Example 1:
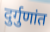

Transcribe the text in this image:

दुर्गुणांत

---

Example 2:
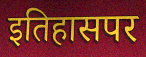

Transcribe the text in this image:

इतिहासपर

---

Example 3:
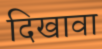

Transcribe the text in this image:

दिखावा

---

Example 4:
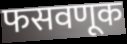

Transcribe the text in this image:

फसवणूक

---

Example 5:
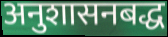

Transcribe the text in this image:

अनुशासनबद्ध